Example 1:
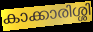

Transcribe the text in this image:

കാക്കാരിശ്ശി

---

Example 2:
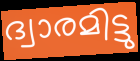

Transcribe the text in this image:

ദ്വാരമിട്ടു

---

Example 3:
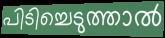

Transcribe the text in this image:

പിടിച്ചെടുത്താൽ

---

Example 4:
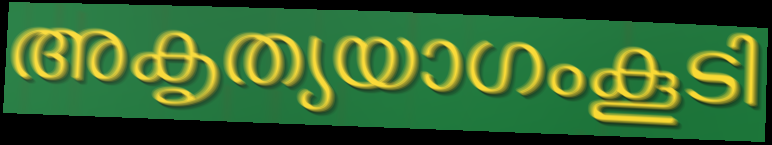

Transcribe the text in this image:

അകൃത്യയാഗംകൂടി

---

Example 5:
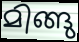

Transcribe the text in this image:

മിങ്ങു